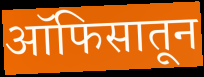
ऑफिसातून